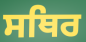
ਸਥਿਰ